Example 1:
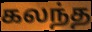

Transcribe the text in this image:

கலந்த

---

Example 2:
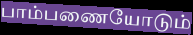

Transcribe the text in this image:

பாம்பணையோடும்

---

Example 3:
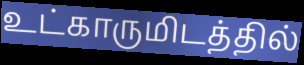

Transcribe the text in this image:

உட்காருமிடத்தில்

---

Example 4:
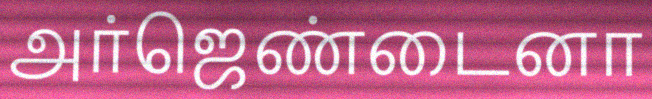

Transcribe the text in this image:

அர்ஜெண்டைனா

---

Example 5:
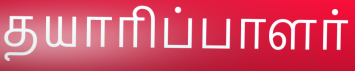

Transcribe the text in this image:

தயாரிப்பாளர்